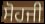
ਸੋਹਜੀ